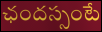
ఛందస్సంటే